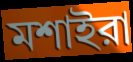
মশাইরা